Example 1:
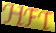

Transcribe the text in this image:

HFT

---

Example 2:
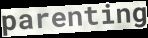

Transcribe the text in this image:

parenting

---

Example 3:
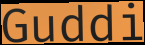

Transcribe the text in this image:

Guddi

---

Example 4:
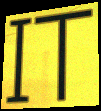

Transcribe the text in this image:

IT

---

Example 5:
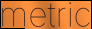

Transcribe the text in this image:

metric